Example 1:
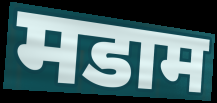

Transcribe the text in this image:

मडाम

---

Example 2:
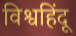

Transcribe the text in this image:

विश्वहिंदू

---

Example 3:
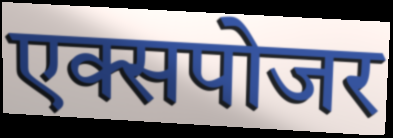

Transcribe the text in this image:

एक्सपोजर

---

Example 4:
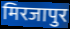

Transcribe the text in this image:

मिरजापुर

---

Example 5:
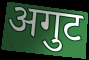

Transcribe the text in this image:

अगुट